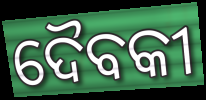
ଦୈବକୀ